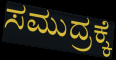
ಸಮುದ್ರಕ್ಕೆ